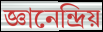
জ্ঞানেন্দ্রিয়